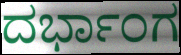
ದರ್ಭಾಂಗ